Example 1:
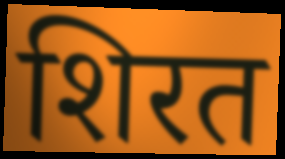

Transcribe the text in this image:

शिरत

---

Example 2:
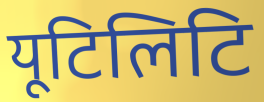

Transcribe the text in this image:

यूटिलिटि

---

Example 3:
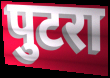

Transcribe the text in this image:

पुटरा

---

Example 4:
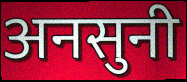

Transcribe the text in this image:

अनसुनी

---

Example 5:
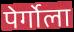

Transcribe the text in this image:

पेर्गोला